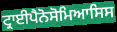
ਟ੍ਰਾਈਪੈਨੋਸੋਮਿਆਸਿਸ